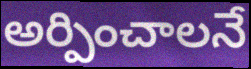
అర్పించాలనే